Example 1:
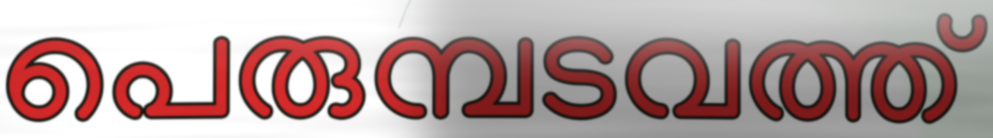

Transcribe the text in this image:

പെരുമ്പടവത്ത്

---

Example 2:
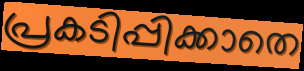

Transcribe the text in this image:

പ്രകടിപ്പിക്കാതെ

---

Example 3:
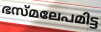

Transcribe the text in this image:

ഭസ്മലേപമിട്ട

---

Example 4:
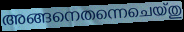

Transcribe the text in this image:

അങ്ങനെതന്നെചെയ്തു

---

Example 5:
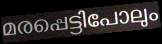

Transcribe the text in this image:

മരപ്പെട്ടിപോലും